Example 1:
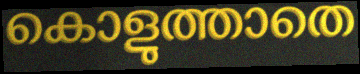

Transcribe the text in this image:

കൊളുത്താതെ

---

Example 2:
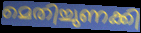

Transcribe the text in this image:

മെതിച്ചുണക്കി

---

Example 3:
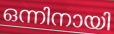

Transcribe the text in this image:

ഒന്നിനായി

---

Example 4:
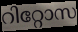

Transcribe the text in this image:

റിറ്റോസ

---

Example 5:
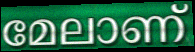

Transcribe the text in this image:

മേലാണ്